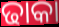
ଢାକା